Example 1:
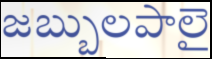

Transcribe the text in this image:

జబ్బులపాలై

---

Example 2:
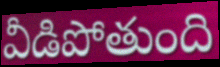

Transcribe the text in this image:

వీడిపోతుంది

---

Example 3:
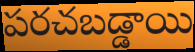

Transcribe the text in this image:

పరచబడ్డాయి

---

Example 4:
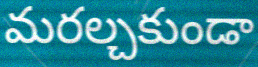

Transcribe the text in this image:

మరల్చకుండా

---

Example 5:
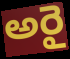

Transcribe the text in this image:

అరై